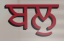
ਬਲੁ